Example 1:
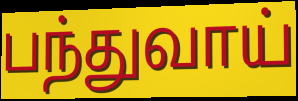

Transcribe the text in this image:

பந்துவாய்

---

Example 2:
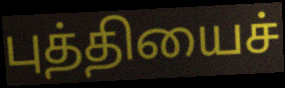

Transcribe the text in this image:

புத்தியைச்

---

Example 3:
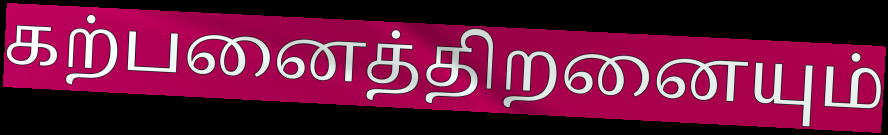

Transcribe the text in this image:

கற்பனைத்திறனையும்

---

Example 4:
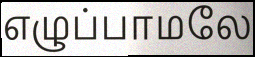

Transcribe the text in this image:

எழுப்பாமலே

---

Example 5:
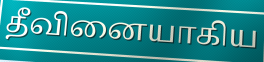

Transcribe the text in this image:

தீவினையாகிய